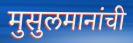
मुसुलमानांची